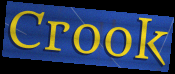
Crook